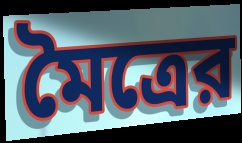
মৈত্রের